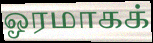
ஓரமாகக்